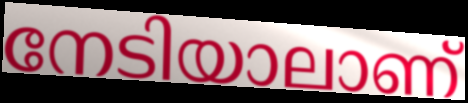
നേടിയാലാണ്